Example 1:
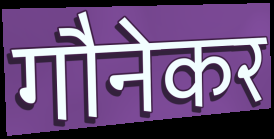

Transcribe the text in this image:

गौनेकर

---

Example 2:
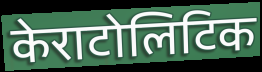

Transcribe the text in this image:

केराटोलिटिक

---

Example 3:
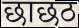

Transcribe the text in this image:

छाछठ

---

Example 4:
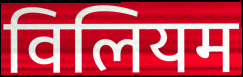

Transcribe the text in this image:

विलियम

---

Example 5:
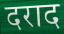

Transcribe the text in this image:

दराद